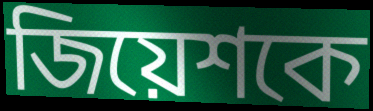
জিয়েশকে